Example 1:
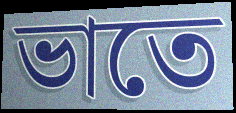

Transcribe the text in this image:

ভাতে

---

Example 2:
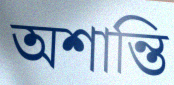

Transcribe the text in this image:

অশান্তি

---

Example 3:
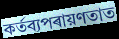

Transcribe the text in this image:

কৰ্তব্যপৰায়ণতাত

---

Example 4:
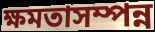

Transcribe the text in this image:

ক্ষমতাসম্পন্ন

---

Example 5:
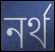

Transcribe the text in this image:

নৰ্থ